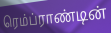
ரெம்ப்ராண்டின்